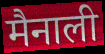
मैनाली